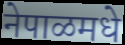
नेपाळमधे